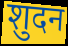
शुदन